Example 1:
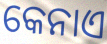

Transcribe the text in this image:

କେନାଏ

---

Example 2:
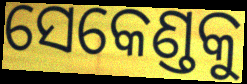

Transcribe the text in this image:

ସେକେଣ୍ଡକୁ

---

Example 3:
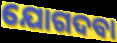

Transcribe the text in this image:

ଯୋଗଦବା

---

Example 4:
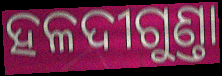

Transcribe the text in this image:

ହଳଦୀଗୁଣ୍ତା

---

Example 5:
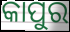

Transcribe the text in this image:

କାପୁର